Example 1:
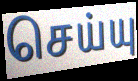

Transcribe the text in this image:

செய்யு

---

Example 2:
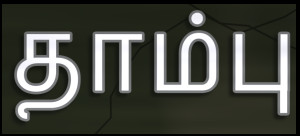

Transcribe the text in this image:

தாம்பு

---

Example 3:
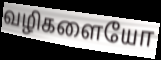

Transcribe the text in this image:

வழிகளையோ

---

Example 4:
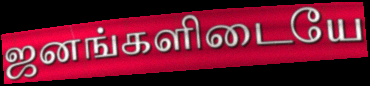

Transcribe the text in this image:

ஜனங்களிடையே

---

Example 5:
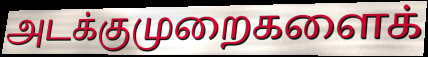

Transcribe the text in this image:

அடக்குமுறைகளைக்